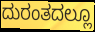
ದುರಂತದಲ್ಲೂ